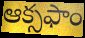
ఆక్సఫాం